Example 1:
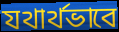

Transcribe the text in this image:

যথার্থভাবে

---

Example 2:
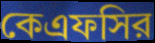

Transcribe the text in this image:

কেএফসির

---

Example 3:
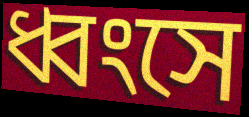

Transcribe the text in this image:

ধ্বংসে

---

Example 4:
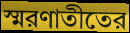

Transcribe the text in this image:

স্মরণাতীতের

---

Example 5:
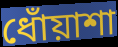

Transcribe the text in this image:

ধোঁয়াশা